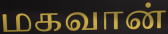
மகவான்